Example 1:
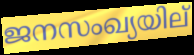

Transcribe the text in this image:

ജനസംഖ്യയില്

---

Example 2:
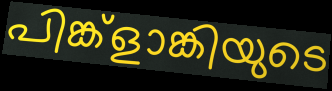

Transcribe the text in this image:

പിങ്ക്ളാങ്കിയുടെ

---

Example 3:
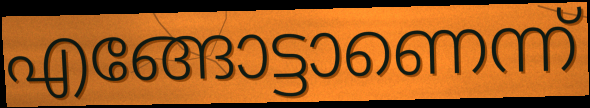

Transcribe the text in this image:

എങ്ങോട്ടാണെന്ന്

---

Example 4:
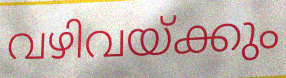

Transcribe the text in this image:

വഴിവയ്ക്കും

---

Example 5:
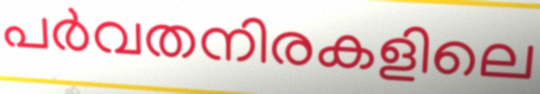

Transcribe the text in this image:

പർവതനിരകളിലെ